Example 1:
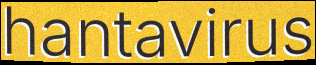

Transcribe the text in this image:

hantavirus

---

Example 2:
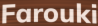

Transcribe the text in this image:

Farouki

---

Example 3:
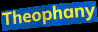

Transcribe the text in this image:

Theophany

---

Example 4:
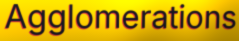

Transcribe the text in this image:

Agglomerations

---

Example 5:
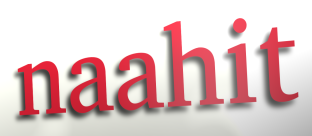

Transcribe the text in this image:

naahit